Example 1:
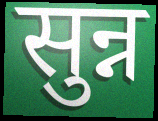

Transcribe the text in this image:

सुन्न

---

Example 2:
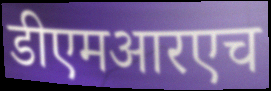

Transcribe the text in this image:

डीएमआरएच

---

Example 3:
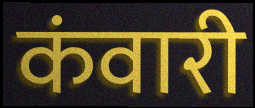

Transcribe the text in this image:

कंवारी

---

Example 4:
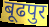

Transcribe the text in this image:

बूढपुर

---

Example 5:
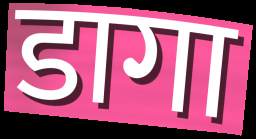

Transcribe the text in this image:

डागा